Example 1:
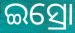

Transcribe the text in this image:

ଇସ୍ରୋ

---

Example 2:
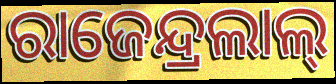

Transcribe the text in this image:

ରାଜେନ୍ଦ୍ରଲାଲ୍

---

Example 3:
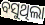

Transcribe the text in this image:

ବସୁଥିଲା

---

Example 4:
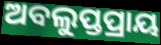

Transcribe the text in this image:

ଅବଲୁପ୍ତପ୍ରାୟ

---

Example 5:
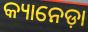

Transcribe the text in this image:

କ୍ୟାନେଡ଼ା